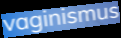
vaginismus